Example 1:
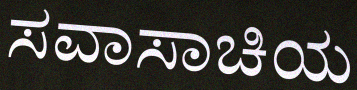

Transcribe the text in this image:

ಸವಾಸಾಚಿಯ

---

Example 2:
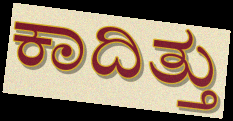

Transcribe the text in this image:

ಕಾದಿತ್ತು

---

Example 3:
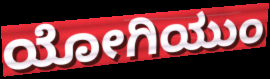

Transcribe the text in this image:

ಯೋಗಿಯುಂ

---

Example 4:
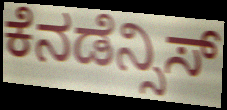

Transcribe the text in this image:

ಕೆನಡೆನ್ಸಿಸ್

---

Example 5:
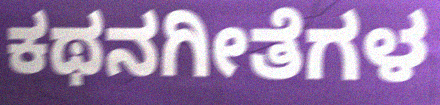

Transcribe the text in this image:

ಕಥನಗೀತೆಗಳ